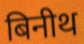
बिनीथ